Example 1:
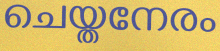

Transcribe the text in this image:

ചെയ്തനേരം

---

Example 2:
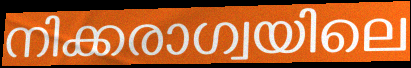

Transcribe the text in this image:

നിക്കരാഗ്വയിലെ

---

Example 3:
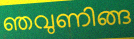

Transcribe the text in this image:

ഞവുണിങ്ങ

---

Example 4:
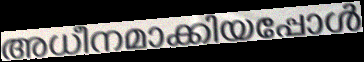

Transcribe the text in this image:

അധീനമാക്കിയപ്പോൾ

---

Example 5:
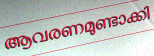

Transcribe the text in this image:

ആവരണമുണ്ടാക്കി